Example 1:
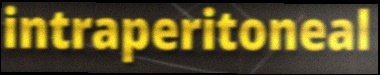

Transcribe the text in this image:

intraperitoneal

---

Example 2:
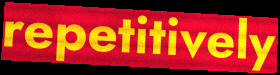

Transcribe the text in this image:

repetitively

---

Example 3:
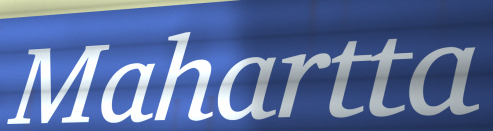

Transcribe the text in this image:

Mahartta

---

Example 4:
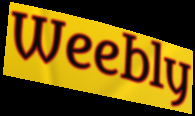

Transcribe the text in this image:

Weebly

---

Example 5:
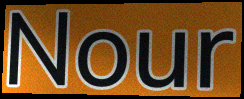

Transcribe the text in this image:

Nour